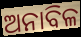
ଅନାବିଳ